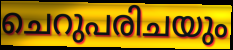
ചെറുപരിചയും